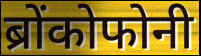
ब्रोंकोफोनी